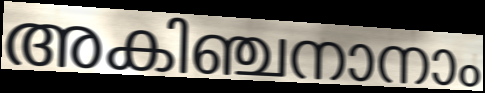
അകിഞ്ചനാനാം